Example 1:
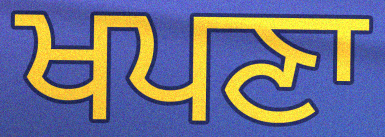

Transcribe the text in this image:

ਖਪਣਾ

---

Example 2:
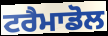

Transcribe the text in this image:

ਟਰੈਮਾਡੋਲ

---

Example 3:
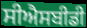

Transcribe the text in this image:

ਸੀਐਸਬੀਡੀ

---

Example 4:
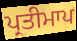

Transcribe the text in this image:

ਪ੍ਰਤੀਮਾਪ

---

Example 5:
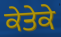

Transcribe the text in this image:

ਕੇਤੇਕੇ